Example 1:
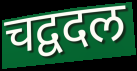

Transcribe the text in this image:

चद्वदल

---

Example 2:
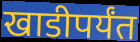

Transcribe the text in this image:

खाडीपर्यंत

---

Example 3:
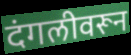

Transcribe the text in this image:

दंगलीवरून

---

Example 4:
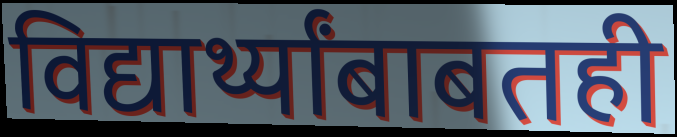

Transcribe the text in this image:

विद्यार्थ्यांबाबतही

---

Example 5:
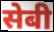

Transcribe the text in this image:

सेबी